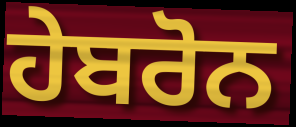
ਹੇਬਰੋਨ